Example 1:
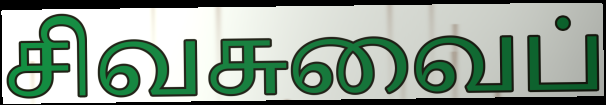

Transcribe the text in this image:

சிவசுவைப்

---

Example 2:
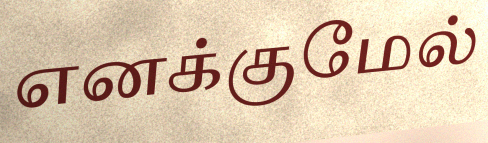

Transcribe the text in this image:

எனக்குமேல்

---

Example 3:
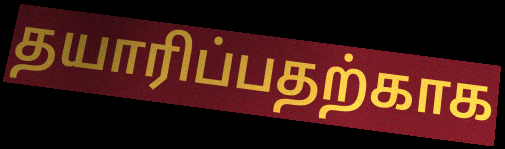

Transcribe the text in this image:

தயாரிப்பதற்காக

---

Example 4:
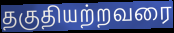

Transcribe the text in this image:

தகுதியற்றவரை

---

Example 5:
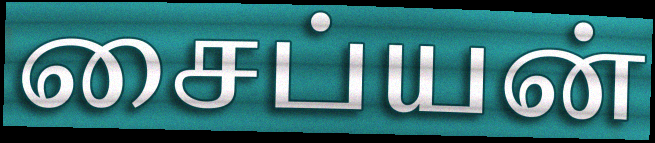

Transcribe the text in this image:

சைப்யன்